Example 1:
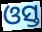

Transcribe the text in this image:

ଓସ୍ତ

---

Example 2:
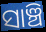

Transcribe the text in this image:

ସାଞ୍ଚି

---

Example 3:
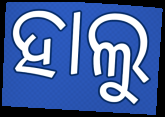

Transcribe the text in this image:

ହାଲୁ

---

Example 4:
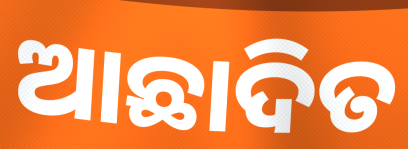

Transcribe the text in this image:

ଆଛାଦିତ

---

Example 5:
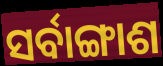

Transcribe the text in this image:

ସର୍ବାଙ୍ଗାଶ